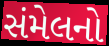
સંમેલનો